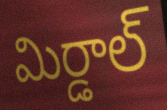
మిర్డాల్